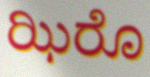
ಝಿರೊ